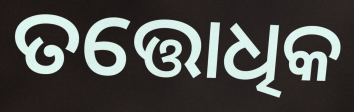
ତତ୍ତୋଧିକ